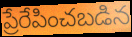
ప్రేరేపించబడిన